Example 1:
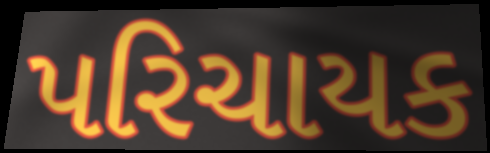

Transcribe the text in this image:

પરિચાયક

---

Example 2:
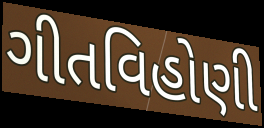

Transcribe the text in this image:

ગીતવિહોણી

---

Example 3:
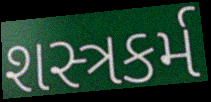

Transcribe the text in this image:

શસ્ત્રકર્મ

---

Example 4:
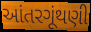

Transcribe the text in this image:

આંતરગૂંથણી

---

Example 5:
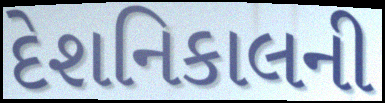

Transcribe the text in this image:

દેશનિકાલની